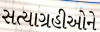
સત્યાગ્રહીઓને